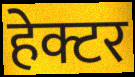
हेक्टर